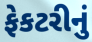
ફેકટરીનું